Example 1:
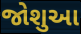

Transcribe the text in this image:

જોશુઆ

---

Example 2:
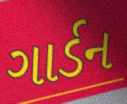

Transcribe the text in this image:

ગાર્ડન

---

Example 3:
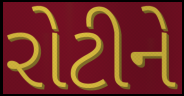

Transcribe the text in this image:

રોટીને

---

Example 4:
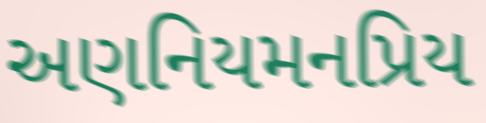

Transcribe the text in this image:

અણનિયમનપ્રિય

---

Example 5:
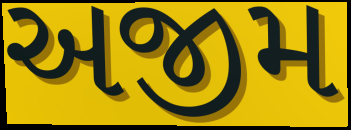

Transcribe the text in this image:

અજીમ